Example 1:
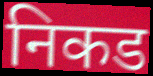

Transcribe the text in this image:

निकड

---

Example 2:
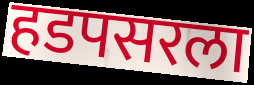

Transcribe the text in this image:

हडपसरला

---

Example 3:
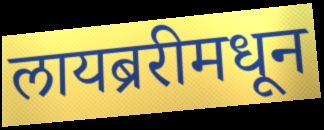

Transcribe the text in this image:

लायब्ररीमधून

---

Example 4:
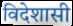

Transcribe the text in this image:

विदेशासी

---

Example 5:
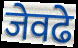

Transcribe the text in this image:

जेवढे